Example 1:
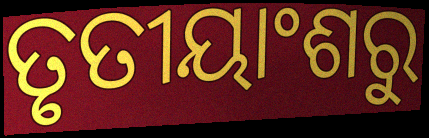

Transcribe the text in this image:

ତୃତୀୟାଂଶରୁ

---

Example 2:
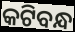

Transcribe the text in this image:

କଟିବନ୍ଧ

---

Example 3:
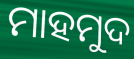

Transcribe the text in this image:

ମାହମୁଦ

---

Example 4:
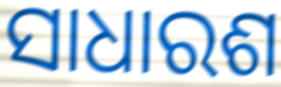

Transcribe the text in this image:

ସାଧାରଶ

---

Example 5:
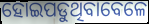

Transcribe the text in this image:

ହୋଇପଡୁଥିବାବେଳେ